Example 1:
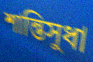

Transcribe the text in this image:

শান্তিসুধা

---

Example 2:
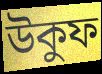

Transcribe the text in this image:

উকুফ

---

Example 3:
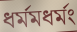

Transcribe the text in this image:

ধর্মমধর্মং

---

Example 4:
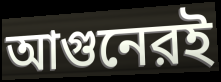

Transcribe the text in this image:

আগুনেরই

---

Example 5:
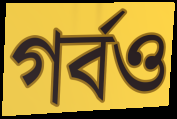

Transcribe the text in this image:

গর্বও